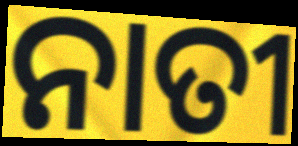
ନାତୀ